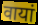
वायां